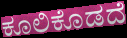
ಕೂಲಿಕೊಡದೆ